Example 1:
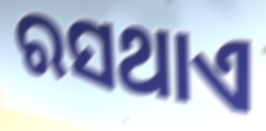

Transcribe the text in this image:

ରସଥାଏ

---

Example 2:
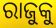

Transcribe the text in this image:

ରାଜୁକୁ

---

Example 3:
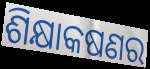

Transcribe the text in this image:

ଶିକ୍ଷାକଷଣର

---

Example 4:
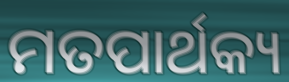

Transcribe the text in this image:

ମତପାର୍ଥକ୍ୟ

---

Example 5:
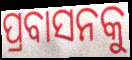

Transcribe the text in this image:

ପ୍ରବାସନକୁ